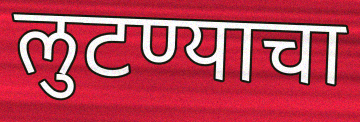
लुटण्याचा